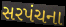
સરપંચના